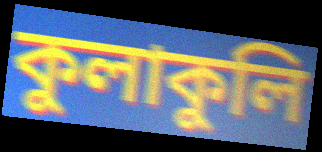
কুলাকুলি